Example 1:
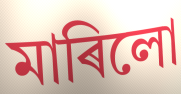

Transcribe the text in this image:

মাৰিলো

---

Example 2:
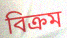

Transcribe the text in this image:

বিক্ৰম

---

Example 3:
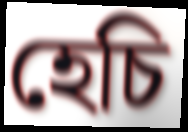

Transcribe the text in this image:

হেচি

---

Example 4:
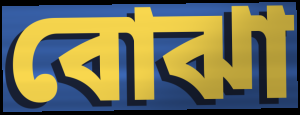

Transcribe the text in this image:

বোঝা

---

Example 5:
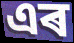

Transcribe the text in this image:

এৰ